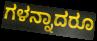
ಗಳನ್ನಾದರೂ